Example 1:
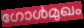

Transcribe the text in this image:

ഗോൾമുഖം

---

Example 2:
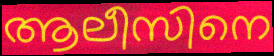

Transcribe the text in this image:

ആലീസിനെ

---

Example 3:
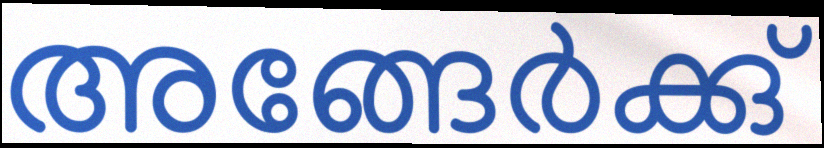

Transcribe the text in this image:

അങ്ങേർക്കു്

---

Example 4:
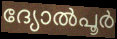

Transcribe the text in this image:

ദ്യോൽപൂർ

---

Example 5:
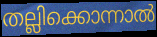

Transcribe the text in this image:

തല്ലിക്കൊന്നാൽ